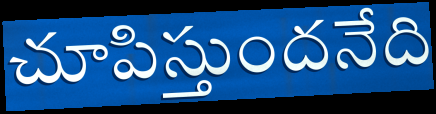
చూపిస్తుందనేది